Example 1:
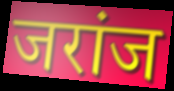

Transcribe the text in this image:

जरांज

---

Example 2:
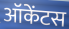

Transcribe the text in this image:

ऑकेंटस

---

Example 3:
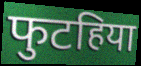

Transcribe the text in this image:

फुटहिया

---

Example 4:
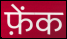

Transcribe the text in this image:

फ़ेंक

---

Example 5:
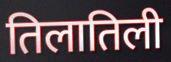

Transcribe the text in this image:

तिलातिली